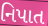
નિપાત